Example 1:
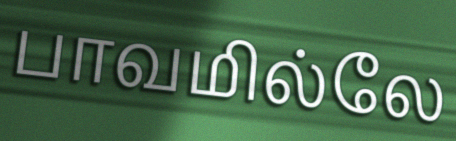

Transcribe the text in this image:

பாவமில்லே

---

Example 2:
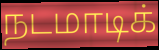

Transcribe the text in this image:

நடமாடிக்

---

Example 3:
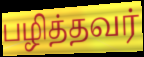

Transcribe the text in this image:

பழித்தவர்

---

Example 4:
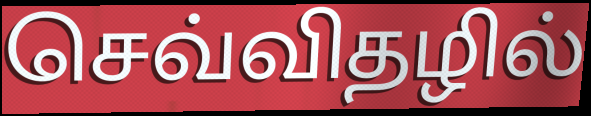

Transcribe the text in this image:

செவ்விதழில்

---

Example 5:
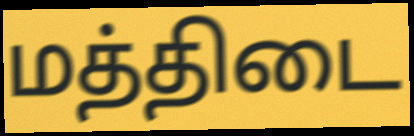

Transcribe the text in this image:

மத்திடை